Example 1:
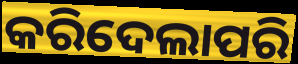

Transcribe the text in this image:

କରିଦେଲାପରି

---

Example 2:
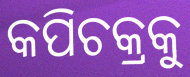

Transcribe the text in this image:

କପିଚକ୍ରକୁ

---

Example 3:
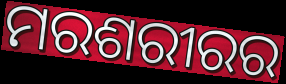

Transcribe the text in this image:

ମରଶରୀରର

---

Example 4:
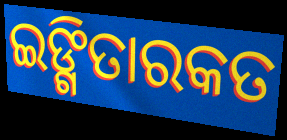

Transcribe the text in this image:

ଇଙ୍ଗିତାରକତ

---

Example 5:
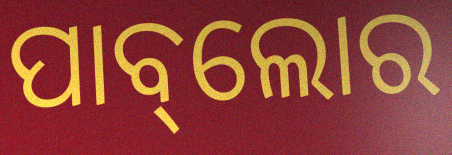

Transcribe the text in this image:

ପାବ୍‌ଲୋର